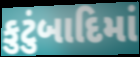
કુટુંબાદિમાં